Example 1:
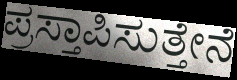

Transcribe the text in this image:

ಪ್ರಸ್ತಾಪಿಸುತ್ತೇನೆ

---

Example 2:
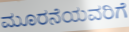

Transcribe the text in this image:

ಮೂರನೆಯವರಿಗೆ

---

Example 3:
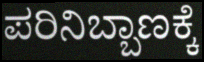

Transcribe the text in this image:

ಪರಿನಿಬ್ಬಾಣಕ್ಕೆ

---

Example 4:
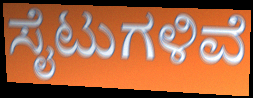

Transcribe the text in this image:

ಸೈಟುಗಳಿವೆ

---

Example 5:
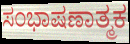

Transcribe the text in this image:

ಸಂಭಾಷಣಾತ್ಮಕ